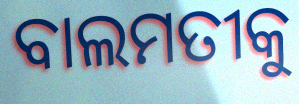
ବାଲମତୀକୁ